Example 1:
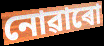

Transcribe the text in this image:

নোৱাৰো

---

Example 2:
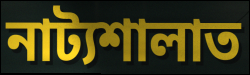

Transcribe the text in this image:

নাট্যশালাত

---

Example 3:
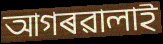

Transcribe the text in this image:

আগৰৱালাই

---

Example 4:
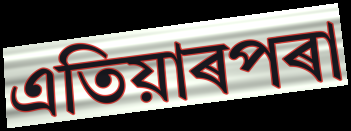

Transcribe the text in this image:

এতিয়াৰপৰা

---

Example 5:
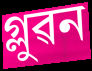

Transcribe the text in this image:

গ্লুৱন